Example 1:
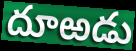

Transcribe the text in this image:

దూఱడు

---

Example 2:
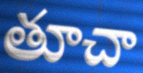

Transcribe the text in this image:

తూచా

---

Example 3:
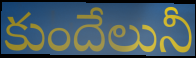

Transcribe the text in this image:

కుందేలునీ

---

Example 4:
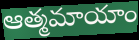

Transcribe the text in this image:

ఆత్మమాయాం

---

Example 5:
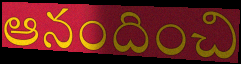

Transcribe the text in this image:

ఆనందించి